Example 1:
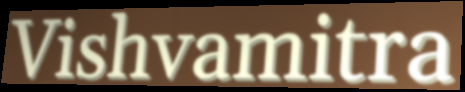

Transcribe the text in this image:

Vishvamitra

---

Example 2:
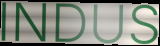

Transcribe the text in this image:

INDUS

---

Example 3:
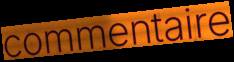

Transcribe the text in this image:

commentaire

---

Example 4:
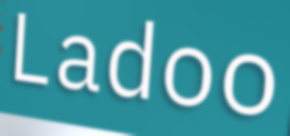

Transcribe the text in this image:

Ladoo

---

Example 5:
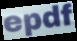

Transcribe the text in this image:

epdf